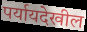
पर्यायदेखील